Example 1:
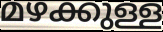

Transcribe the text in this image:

മഴക്കുള്ള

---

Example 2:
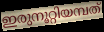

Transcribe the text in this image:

ഇരുനൂറ്റിയമ്പത്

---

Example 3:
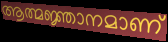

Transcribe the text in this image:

ആത്മജ്ഞാനമാണ്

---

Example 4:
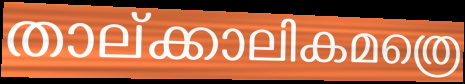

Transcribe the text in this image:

താല്ക്കാലികമത്രെ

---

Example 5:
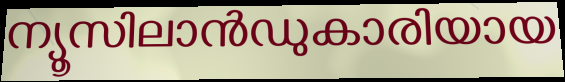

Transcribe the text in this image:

ന്യൂസിലാൻഡുകാരിയായ